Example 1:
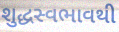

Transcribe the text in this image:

શુદ્ધસ્વભાવથી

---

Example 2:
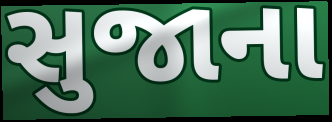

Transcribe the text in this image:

સુજાના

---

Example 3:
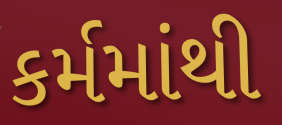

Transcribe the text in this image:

કર્મમાંથી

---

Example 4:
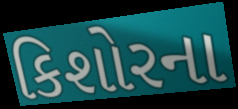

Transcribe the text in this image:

કિશોરના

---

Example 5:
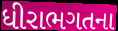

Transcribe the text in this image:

ધીરાભગતના